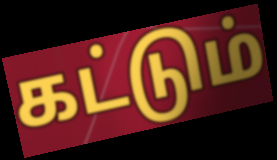
கட்டும்